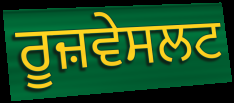
ਰੂਜ਼ਵੇਸਲਟ